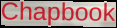
Chapbook